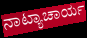
ನಾಟ್ಯಾಚಾರ್ಯ